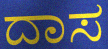
ದಾಸ